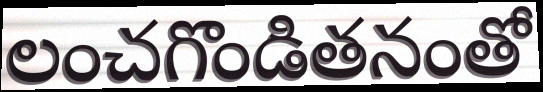
లంచగొండితనంతో